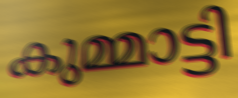
കുമ്മാട്ടി